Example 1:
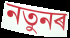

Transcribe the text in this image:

নতুনৰ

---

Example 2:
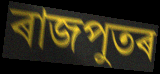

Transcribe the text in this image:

ৰাজপুতৰ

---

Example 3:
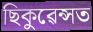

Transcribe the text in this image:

ছিকুৱেন্সত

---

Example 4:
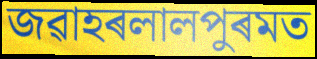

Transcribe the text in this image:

জৱাহৰলালপুৰমত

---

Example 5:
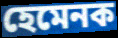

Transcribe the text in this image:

হেমেনক